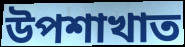
উপশাখাত